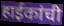
हाईकांची